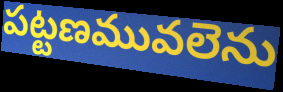
పట్టణమువలెను